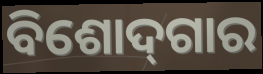
ବିଶୋଦ୍‌ଗାର